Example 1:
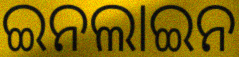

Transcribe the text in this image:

ଇନଲାଇନ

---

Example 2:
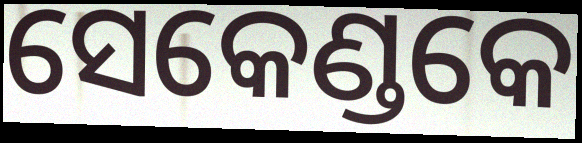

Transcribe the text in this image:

ସେକେଣ୍ଡକେ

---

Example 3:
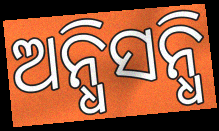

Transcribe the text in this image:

ଅନ୍ଧିସନ୍ଧି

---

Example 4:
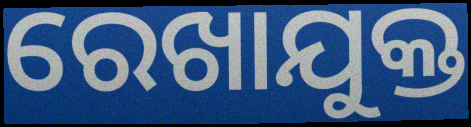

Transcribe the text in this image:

ରେଖାଯୁକ୍ତ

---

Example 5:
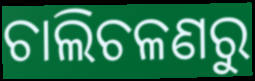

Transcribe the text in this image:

ଚାଲିଚଳଣରୁ